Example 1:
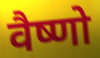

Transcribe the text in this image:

वैष्णो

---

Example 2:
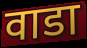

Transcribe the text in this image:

वाडा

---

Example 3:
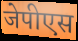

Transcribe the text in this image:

जेपीएस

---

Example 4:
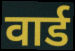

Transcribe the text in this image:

वार्ड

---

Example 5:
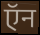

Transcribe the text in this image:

ऍन